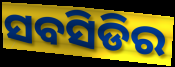
ସବସିଡିର